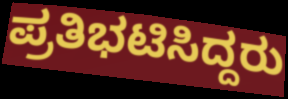
ಪ್ರತಿಭಟಿಸಿದ್ದರು